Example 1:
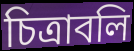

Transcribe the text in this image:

চিত্রাবলি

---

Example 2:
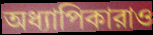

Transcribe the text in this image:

অধ্যাপিকারাও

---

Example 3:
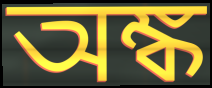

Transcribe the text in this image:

অঙ্ক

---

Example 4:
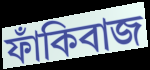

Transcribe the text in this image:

ফাঁকিবাজ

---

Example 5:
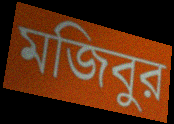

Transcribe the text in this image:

মজিবুর